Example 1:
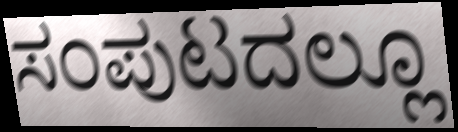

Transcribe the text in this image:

ಸಂಪುಟದಲ್ಲೂ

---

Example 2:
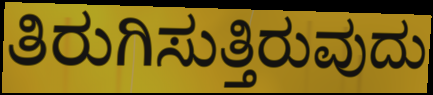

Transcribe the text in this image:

ತಿರುಗಿಸುತ್ತಿರುವುದು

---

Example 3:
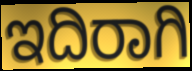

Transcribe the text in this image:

ಇದಿರಾಗಿ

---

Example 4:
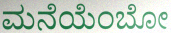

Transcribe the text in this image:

ಮನೆಯೆಂಬೋ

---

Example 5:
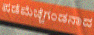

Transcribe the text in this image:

ಪಡೆಮೆಚ್ಚೆಗಂಡನಾದ